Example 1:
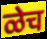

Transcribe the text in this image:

ळेच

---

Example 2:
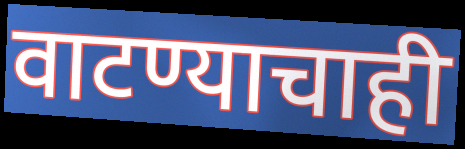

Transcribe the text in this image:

वाटण्याचाही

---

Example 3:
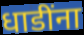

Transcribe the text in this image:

धाडींना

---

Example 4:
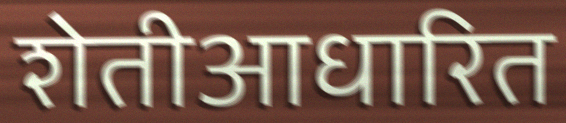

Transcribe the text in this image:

शेतीआधारित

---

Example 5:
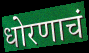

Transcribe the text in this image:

धोरणाचं